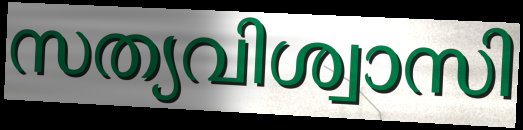
സത്യവിശ്വാസി